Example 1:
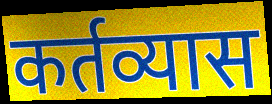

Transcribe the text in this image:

कर्तव्यास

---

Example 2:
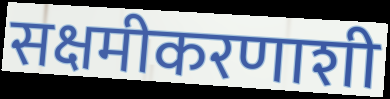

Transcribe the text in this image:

सक्षमीकरणाशी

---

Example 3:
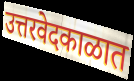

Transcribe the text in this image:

उत्तरवेदकाळात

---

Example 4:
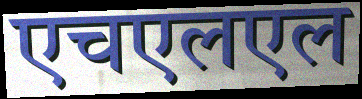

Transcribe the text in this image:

एचएलएल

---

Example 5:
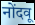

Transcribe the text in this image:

नोंदवू